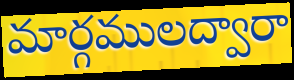
మార్గములద్వారా